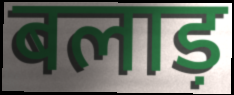
बलाड़